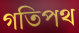
গতিপথ